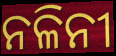
ନଳିନୀ